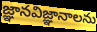
జ్ఞానవిజ్ఞానాలను